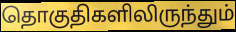
தொகுதிகளிலிருந்தும்